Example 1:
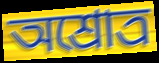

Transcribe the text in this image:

অশ্রোত্র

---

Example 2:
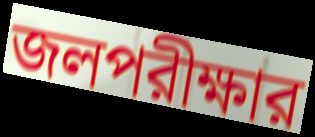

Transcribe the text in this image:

জলপরীক্ষার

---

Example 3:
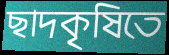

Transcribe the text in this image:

ছাদকৃষিতে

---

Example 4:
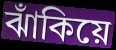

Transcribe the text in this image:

ঝাঁকিয়ে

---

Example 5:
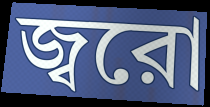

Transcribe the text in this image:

জ্বরো